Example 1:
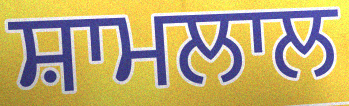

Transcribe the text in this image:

ਸ਼ਾਮਲਾਲ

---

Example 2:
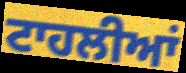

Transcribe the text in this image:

ਟਾਹਲੀਆਂ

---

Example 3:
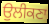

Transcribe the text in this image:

ਉਲੀਕਣਾ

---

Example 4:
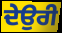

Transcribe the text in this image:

ਦੇਉਰੀ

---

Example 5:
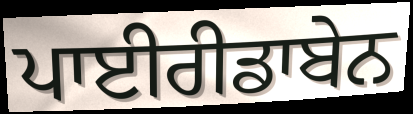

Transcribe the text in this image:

ਪਾਈਰੀਡਾਬੇਨ